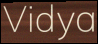
Vidya